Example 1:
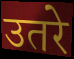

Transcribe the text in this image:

उतरे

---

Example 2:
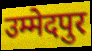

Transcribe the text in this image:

उम्मेदपुर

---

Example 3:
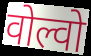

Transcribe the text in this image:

वोल्वो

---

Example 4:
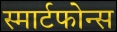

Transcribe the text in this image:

स्मार्टफोन्स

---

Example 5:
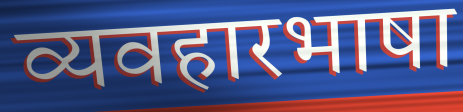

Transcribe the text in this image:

व्यवहारभाषा